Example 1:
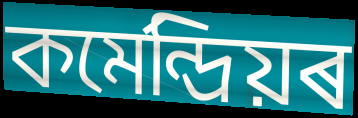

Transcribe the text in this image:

কৰ্মেন্দ্ৰিয়ৰ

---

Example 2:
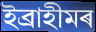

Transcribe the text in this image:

ইব্ৰাহীমৰ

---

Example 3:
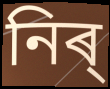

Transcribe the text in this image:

নিৰ্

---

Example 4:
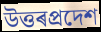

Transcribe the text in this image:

উত্তৰপ্ৰদেশ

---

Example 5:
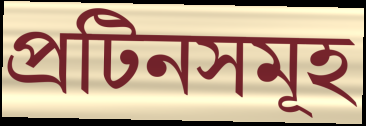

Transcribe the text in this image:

প্ৰটিনসমূহ